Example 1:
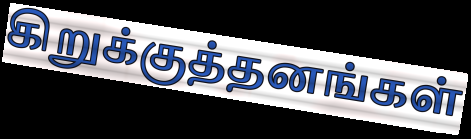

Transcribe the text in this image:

கிறுக்குத்தனங்கள்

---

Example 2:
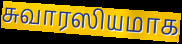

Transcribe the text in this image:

சுவாரஸியமாக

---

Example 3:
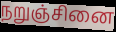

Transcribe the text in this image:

நறுஞ்சினை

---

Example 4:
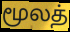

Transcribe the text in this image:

மூலத்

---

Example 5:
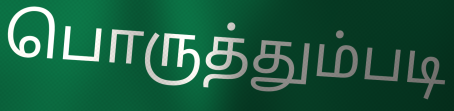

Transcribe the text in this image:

பொருத்தும்படி